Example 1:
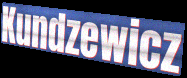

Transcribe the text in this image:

Kundzewicz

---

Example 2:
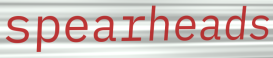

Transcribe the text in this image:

spearheads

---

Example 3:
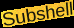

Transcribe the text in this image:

Subshell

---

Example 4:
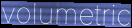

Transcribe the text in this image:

volumetric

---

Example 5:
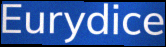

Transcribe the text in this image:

Eurydice